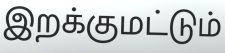
இறக்குமட்டும்